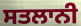
ਸਤਲਾਨੀ